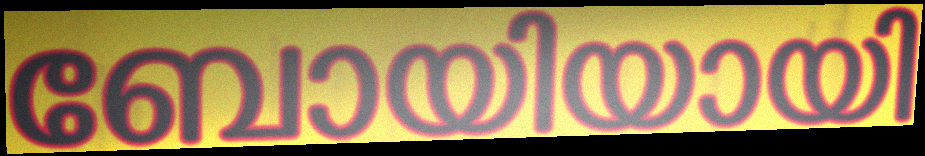
ബോയിയായി